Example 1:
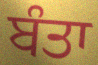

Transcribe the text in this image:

ਬੰਤਾ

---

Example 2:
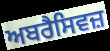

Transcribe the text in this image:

ਅਬਰੈਸਿਵਜ਼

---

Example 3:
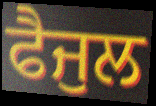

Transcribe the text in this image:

ਫੈਜੁਲ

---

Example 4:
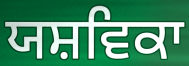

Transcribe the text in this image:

ਯਸ਼ਵਿਕਾ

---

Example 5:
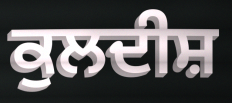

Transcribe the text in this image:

ਕੁਲਦੀਸ਼